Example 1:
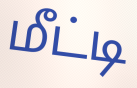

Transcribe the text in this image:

மீட்டி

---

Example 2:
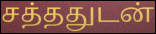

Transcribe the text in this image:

சத்ததுடன்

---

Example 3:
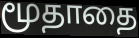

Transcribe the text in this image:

மூதாதை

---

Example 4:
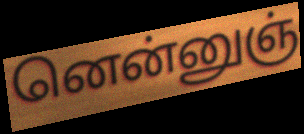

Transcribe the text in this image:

னென்னுஞ்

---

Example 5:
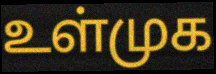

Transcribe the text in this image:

உள்முக